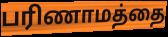
பரிணாமத்தை